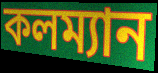
কলম্যান